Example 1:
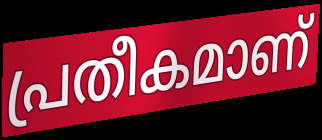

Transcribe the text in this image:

പ്രതീകമാണ്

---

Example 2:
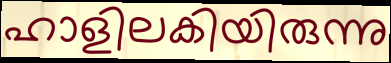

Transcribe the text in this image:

ഹാളിലകിയിരുന്നു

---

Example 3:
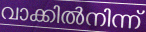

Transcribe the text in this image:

വാക്കിൽനിന്ന്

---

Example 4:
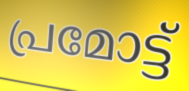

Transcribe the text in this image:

പ്രമോട്ട്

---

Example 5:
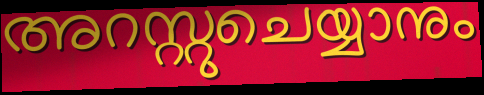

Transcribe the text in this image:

അറസ്റ്റുചെയ്യാനും